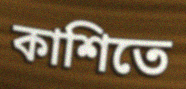
কাশিতে